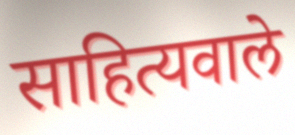
साहित्यवाले